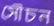
সৌচন